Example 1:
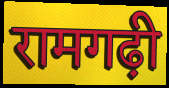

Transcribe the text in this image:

रामगढ़ी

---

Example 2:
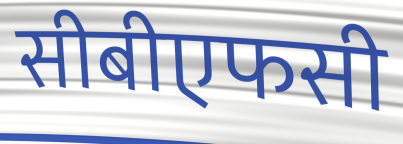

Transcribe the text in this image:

सीबीएफसी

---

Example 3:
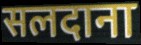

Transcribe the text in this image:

सलदाना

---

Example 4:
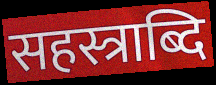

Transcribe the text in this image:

सहस्त्राब्दि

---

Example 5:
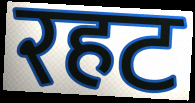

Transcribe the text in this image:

रहट